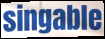
singable